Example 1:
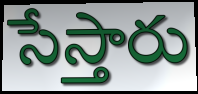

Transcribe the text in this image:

సేస్తారు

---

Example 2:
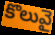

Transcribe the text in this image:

కొలువై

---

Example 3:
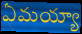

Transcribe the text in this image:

ఏమయ్యా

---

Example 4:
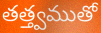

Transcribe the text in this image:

తత్త్వముతో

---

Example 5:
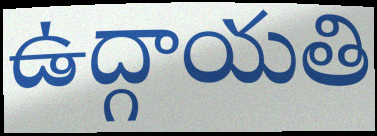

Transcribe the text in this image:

ఉద్గాయతి